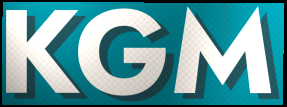
KGM